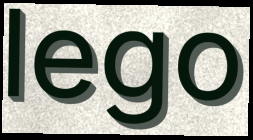
lego